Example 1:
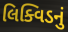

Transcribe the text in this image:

લિક્વિડનું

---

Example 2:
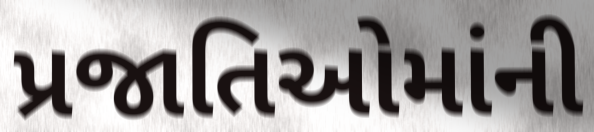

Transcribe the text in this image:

પ્રજાતિઓમાંની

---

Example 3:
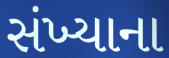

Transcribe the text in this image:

સંખ્યાના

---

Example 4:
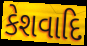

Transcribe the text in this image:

કેશવાદિ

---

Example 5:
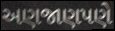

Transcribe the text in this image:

અણજાણપણે